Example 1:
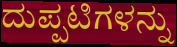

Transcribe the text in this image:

ದುಪ್ಪಟಿಗಳನ್ನು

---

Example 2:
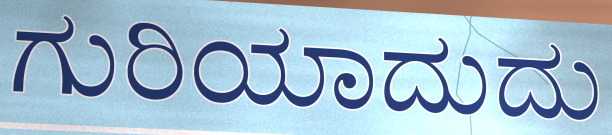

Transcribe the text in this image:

ಗುರಿಯಾದುದು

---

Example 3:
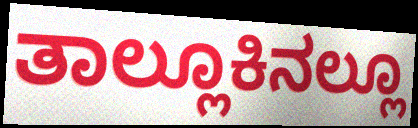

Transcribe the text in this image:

ತಾಲ್ಲೂಕಿನಲ್ಲೂ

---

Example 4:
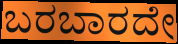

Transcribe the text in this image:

ಬರಬಾರದೇ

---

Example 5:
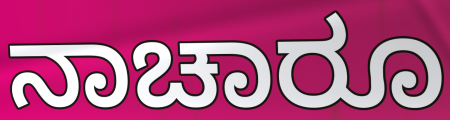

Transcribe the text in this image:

ನಾಚಾರೂ